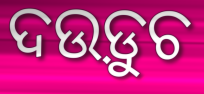
ଦଉଡ଼ୁଚ